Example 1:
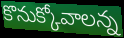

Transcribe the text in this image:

కొనుక్కోవాలన్న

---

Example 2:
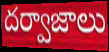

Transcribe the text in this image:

దర్వాజాలు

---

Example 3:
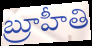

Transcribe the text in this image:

బ్రూహీతి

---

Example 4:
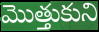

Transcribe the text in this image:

మొత్తుకుని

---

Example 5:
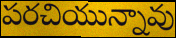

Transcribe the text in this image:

పరచియున్నావు